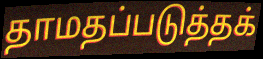
தாமதப்படுத்தக்